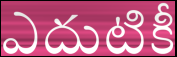
ఎదుటికీ